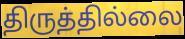
திருத்தில்லை